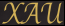
XAU